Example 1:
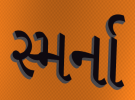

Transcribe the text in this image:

સ્મર્ના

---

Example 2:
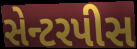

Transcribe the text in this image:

સેન્ટરપીસ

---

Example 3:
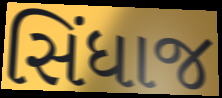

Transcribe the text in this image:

સિંધાજ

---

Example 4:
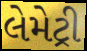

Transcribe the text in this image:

લેમેટ્રી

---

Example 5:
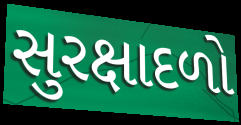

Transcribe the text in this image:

સુરક્ષાદળો